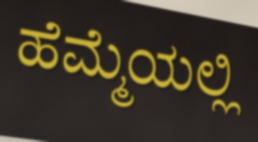
ಹೆಮ್ಮೆಯಲ್ಲಿ